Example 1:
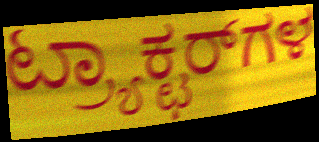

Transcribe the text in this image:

ಟ್ರ್ಯಾಕ್ಟರ್‌ಗಳ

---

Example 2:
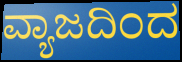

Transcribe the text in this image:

ವ್ಯಾಜದಿಂದ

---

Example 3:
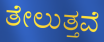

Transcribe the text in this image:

ತೇಲುತ್ತವೆ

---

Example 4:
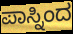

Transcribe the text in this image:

ಪಾಸ್ನಿಂದ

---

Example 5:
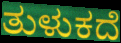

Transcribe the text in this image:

ತುಳುಕದೆ